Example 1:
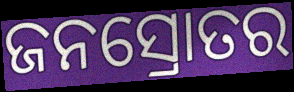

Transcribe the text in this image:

ଜନସ୍ରୋତର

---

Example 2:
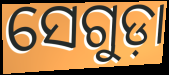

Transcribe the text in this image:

ସେଗୁଡ଼ା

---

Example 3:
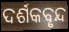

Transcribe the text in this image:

ଦର୍ଶକବୃନ୍ଦ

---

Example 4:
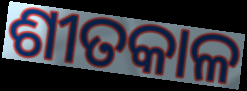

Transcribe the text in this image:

ଶୀତକାଳ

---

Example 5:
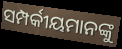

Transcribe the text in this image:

ସମ୍ପର୍କୀୟମାନଙ୍କୁ